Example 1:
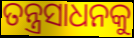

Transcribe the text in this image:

ତନ୍ତ୍ରସାଧନକୁ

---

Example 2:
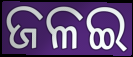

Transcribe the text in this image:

ଜଳଇ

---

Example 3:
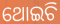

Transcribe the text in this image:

ଥୋଇଚି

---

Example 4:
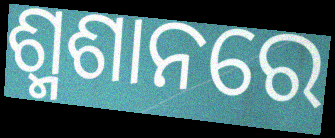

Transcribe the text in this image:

ଶ୍ମଶାନରେ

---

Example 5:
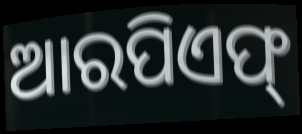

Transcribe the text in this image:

ଆରପିଏଫ୍